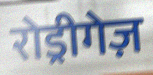
रोड्रीगेज़